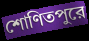
শোণিতপুরে